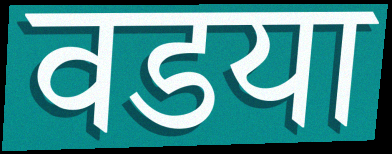
वडया